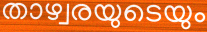
താഴ്വരയുടെയും